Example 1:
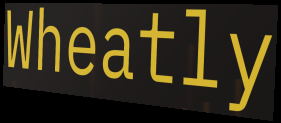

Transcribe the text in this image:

Wheatly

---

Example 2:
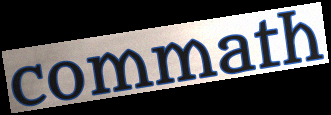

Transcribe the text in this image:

commath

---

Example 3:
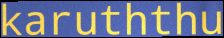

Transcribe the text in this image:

karuththu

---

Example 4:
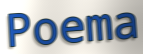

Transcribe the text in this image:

Poema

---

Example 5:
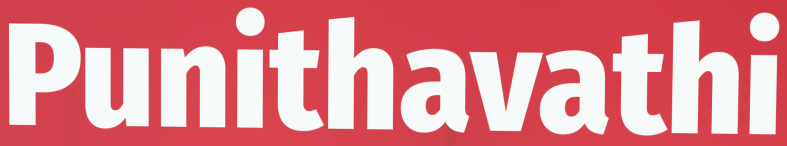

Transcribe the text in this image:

Punithavathi